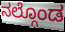
ನಲ್ಗೊಂಡ